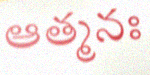
ఆత్మనః